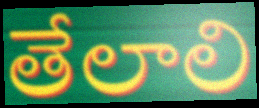
తేలాలి